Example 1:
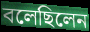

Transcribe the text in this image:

বলেছিলেন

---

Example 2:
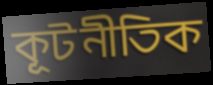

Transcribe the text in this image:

কূটনীতিক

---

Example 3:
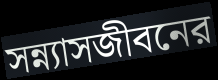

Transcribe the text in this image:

সন্ন্যাসজীবনের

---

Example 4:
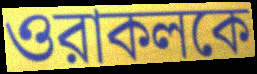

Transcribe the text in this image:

ওরাকলকে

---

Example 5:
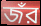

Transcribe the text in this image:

জঁর